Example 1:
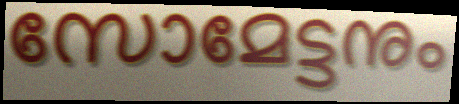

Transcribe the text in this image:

സോമേട്ടനും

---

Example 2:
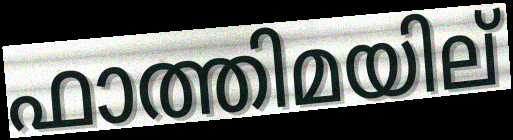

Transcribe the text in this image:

ഫാത്തിമയില്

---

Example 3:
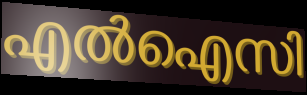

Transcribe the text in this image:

എൽഐസി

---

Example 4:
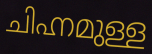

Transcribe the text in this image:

ചിഹ്നമുള്ള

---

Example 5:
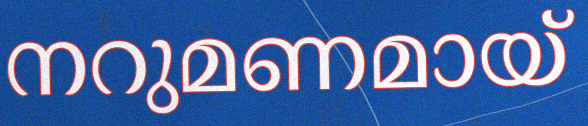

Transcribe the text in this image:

നറുമണമായ്